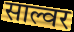
साल्वर